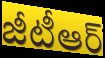
జీటీఆర్